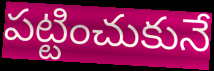
పట్టించుకునే